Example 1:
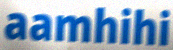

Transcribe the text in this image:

aamhihi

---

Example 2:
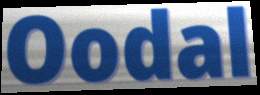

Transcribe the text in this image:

Oodal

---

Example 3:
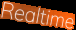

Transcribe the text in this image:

Realtime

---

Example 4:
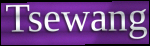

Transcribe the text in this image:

Tsewang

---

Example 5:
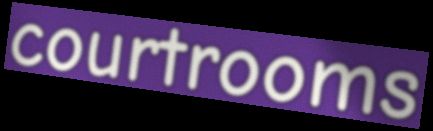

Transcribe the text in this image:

courtrooms